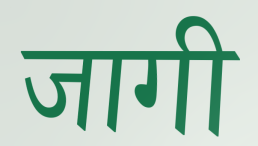
जागी